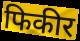
फिकीर